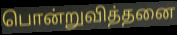
பொன்றுவித்தனை